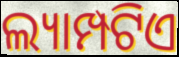
ଲ୍ୟାମ୍ପଟିଏ